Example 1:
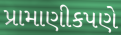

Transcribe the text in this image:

પ્રામાણીકપણે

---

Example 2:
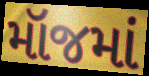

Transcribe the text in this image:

મૉજમાં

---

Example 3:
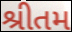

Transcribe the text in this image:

શ્રીતમ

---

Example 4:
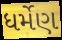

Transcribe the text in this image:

ધર્મેણ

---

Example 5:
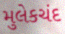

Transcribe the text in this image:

મુલેકચંદ